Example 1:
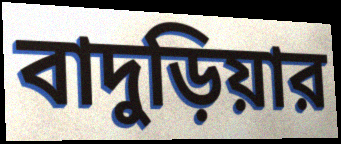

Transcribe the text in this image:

বাদুড়িয়ার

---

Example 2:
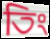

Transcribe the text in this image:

তিং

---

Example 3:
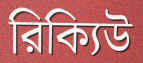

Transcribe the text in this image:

রিক্যিউ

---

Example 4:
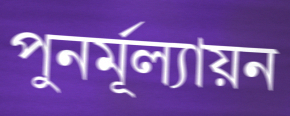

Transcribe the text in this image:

পুনর্মূল্যায়ন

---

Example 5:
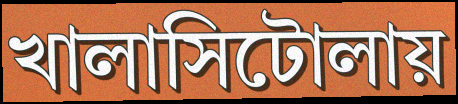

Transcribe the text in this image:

খালাসিটোলায়